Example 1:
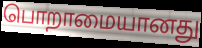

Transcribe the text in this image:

பொறாமையானது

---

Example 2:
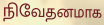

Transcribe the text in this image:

நிவேதனமாக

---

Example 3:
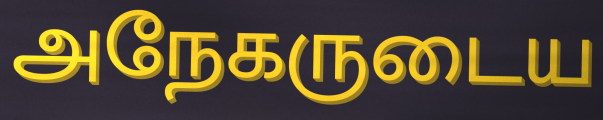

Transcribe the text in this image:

அநேகருடைய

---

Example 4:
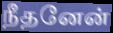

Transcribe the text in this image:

நீதனேன்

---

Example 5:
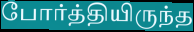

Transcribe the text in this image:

போர்த்தியிருந்த